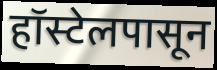
हॉस्टेलपासून